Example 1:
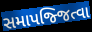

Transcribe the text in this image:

સમાપજ્જિત્વા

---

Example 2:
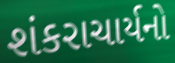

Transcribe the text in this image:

શંકરાચાર્યનો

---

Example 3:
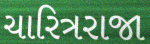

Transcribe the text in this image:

ચારિત્રરાજા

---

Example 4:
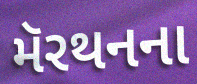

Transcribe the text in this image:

મૅરથનના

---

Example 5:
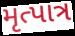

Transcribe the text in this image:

મૃત્પાત્ર